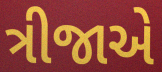
ત્રીજાએ